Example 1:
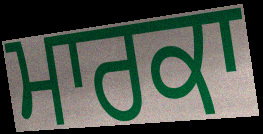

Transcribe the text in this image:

ਮਾਰਕਾ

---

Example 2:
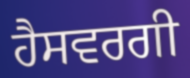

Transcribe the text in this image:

ਹੈਸਵਰਗੀ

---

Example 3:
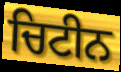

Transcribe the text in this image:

ਚਿਟੀਨ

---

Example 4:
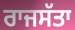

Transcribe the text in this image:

ਰਾਜਸੱਤਾ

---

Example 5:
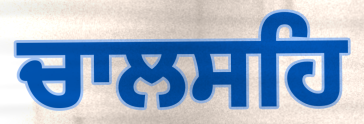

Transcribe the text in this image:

ਚਾਲਸਹਿ